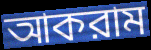
আকরাম